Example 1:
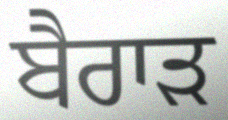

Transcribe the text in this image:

ਬੈਰਾੜ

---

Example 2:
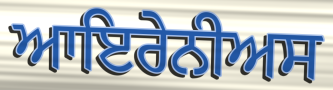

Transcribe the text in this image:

ਆਇਰੇਨੀਅਸ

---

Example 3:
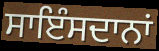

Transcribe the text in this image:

ਸਾਇੰਸਦਾਨਾਂ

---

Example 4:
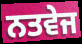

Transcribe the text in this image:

ਨਤਵੇਜ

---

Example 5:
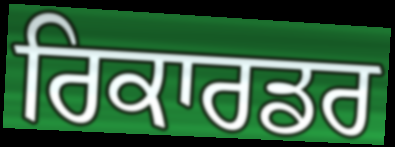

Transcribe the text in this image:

ਰਿਕਾਰਡਰ